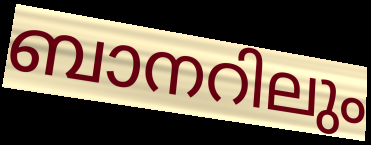
ബാനറിലും